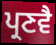
ਪ੍ਰਣਵੈ